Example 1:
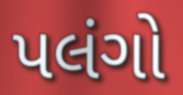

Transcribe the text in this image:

પલંગો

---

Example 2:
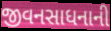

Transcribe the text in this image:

જીવનસાધનાની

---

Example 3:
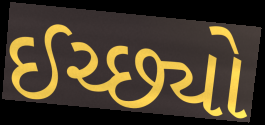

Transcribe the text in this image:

ઈચ્છ્યો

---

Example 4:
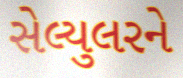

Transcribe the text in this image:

સેલ્યુલરને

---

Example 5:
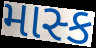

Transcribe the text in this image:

માસ્ક